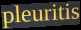
pleuritis